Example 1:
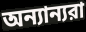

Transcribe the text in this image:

অন্যান্যরা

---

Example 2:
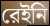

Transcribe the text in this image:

রেইনি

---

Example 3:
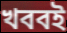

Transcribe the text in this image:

খববই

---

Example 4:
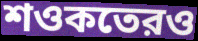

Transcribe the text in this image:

শওকতেরও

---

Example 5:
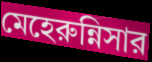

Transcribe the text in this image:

মেহেরুন্নিসার